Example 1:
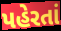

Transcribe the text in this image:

પહેરતાં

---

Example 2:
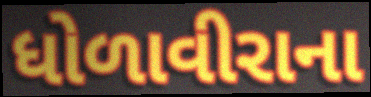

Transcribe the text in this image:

ધોળાવીરાના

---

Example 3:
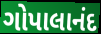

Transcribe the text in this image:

ગોપાલાનંદ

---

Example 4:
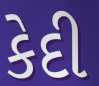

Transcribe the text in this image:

કેદી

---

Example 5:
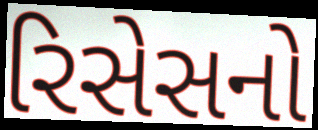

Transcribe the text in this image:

રિસેસનો